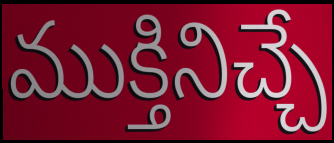
ముక్తినిచ్చే